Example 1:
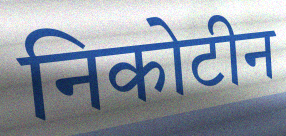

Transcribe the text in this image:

निकोटीन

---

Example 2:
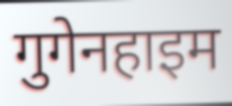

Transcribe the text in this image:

गुगेनहाइम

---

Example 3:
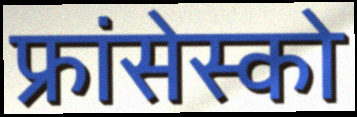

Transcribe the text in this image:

फ्रांसेस्को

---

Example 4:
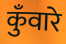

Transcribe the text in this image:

कुँवारे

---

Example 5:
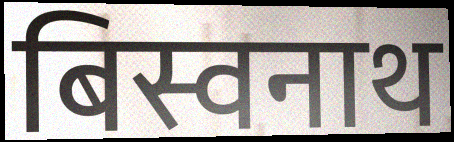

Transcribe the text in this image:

बिस्वनाथ